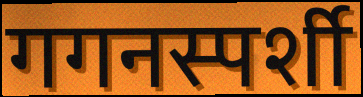
गगनस्पर्शी